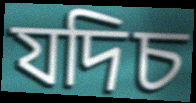
যদিচ